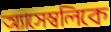
অ্যাসেম্বলিকে